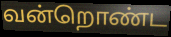
வன்றொண்ட